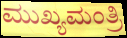
ಮುಖ್ಯಮಂತ್ರಿ